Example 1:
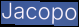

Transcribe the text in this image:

Jacopo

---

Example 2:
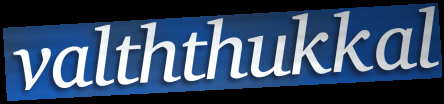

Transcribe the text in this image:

valththukkal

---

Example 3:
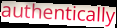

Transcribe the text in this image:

authentically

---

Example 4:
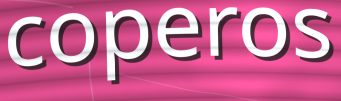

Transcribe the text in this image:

coperos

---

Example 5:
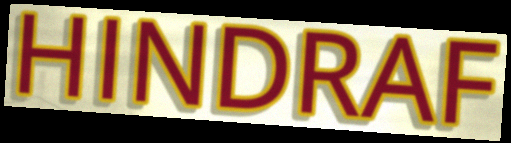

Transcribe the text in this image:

HINDRAF